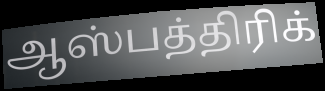
ஆஸ்பத்திரிக்